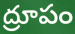
ద్రూపం